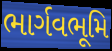
ભાર્ગવભૂમિ